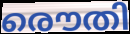
രൌതി